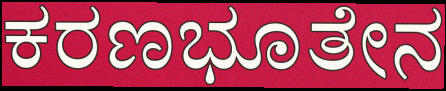
ಕರಣಭೂತೇನ